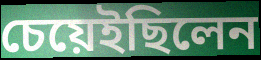
চেয়েইছিলেন